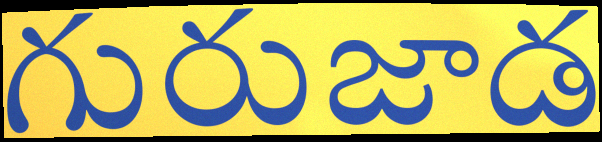
గురుజాడ